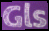
Gls